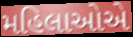
મહિલાઓએ